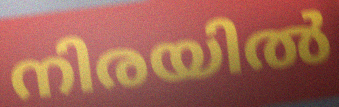
നിരയിൽ